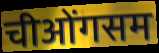
चीओंगसम